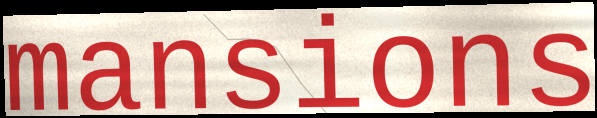
mansions